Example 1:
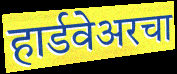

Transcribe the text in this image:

हार्डवेअरचा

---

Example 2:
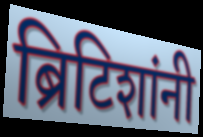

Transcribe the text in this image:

ब्रिटिशांनी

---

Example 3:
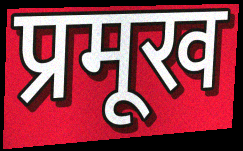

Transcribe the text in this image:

प्रमूख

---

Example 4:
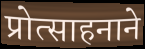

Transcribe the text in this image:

प्रोत्साहनाने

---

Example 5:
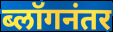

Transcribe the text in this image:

ब्लॉगनंतर